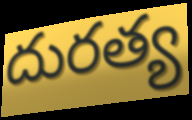
దురత్య